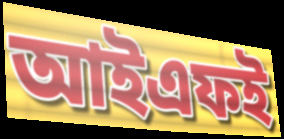
আইএফই